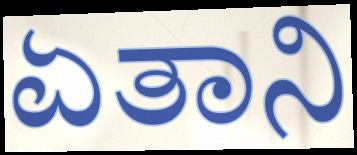
ಏತಾನಿ